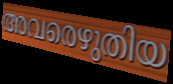
അവരെഴുതിയ